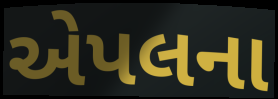
એપલના